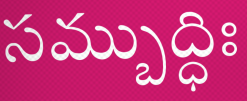
సమ్బుద్ధిః